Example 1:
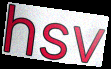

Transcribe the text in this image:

hsv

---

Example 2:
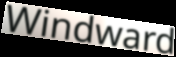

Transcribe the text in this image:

Windward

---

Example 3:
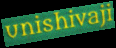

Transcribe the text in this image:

unishivaji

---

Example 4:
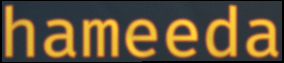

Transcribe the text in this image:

hameeda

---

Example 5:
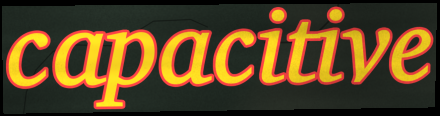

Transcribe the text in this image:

capacitive